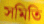
সমিতি